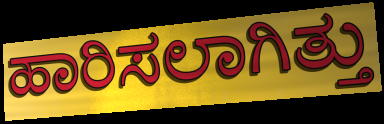
ಹಾರಿಸಲಾಗಿತ್ತು